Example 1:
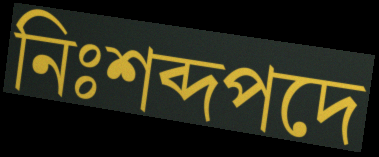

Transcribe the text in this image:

নিঃশব্দপদে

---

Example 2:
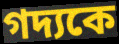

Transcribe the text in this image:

গদ্যকে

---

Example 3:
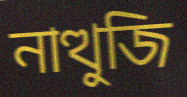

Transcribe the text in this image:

নাত্থুজি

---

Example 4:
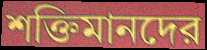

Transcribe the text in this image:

শক্তিমানদের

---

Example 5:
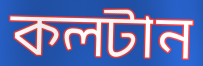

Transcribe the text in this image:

কলটান